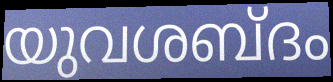
യുവശബ്ദം